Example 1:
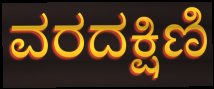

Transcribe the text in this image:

ವರದಕ್ಷಿಣಿ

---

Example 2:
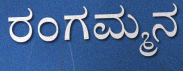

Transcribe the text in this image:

ರಂಗಮ್ಮನ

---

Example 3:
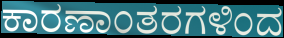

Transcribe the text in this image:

ಕಾರಣಾಂತರಗಳಿಂದ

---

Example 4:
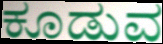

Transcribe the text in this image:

ಕೂಡುವ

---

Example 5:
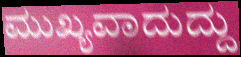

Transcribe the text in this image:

ಮುಖ್ಯವಾದುದ್ದು